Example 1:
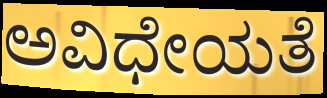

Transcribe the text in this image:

ಅವಿಧೇಯತೆ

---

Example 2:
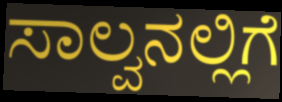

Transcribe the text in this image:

ಸಾಲ್ವನಲ್ಲಿಗೆ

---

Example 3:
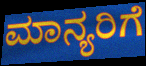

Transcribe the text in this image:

ಮಾನ್ಯರಿಗೆ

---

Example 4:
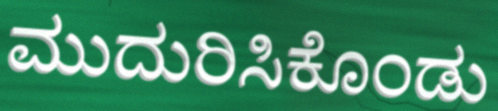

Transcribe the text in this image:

ಮುದುರಿಸಿಕೊಂಡು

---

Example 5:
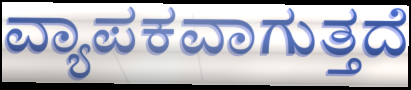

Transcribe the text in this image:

ವ್ಯಾಪಕವಾಗುತ್ತದೆ